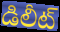
డిలీట్